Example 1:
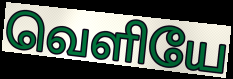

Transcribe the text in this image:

வெளியே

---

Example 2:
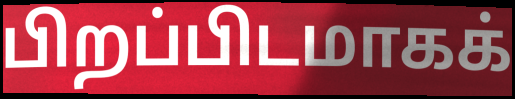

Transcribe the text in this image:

பிறப்பிடமாகக்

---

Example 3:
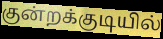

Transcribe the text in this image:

குன்றக்குடியில்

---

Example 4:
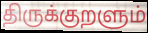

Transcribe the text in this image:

திருக்குறளும்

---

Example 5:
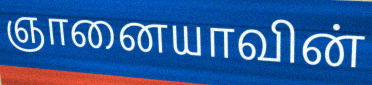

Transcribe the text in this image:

ஞானையாவின்